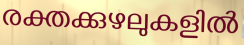
രക്തക്കുഴലുകളിൽ